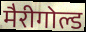
मैरीगोल्ड